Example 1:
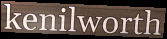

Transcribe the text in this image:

kenilworth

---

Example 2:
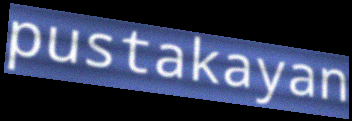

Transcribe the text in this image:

pustakayan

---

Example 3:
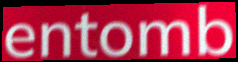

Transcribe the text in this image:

entomb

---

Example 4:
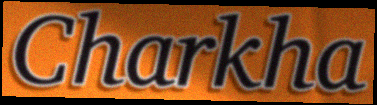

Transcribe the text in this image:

Charkha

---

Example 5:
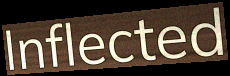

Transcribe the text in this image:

Inflected